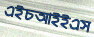
এইচআইইএস